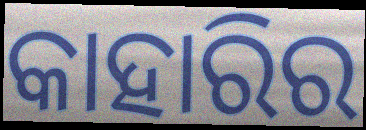
କାହାରିର